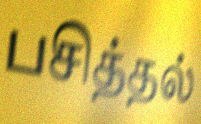
பசித்தல்